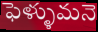
ఫెళ్ళుమనె